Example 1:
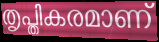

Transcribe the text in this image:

തൃപ്തികരമാണ്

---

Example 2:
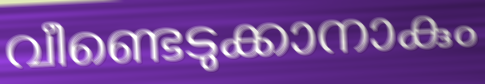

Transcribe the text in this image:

വീണ്ടെടുക്കാനാകും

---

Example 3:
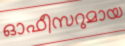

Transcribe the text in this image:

ഓഫീസറുമായ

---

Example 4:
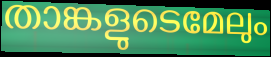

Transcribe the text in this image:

താങ്കളുടെമേലും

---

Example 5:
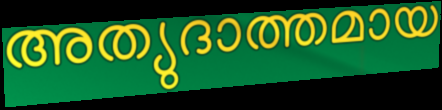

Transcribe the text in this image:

അത്യുദാത്തമായ